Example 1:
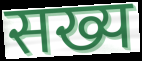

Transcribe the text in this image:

सख्य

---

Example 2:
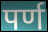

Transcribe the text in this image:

पर्ण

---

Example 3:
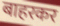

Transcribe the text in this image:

बाहरकर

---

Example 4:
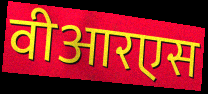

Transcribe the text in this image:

वीआरएस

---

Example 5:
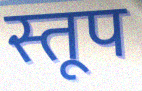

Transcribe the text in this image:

स्तूप